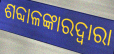
ଶବ୍ଦାଳଙ୍କାରଦ୍ୱାରା